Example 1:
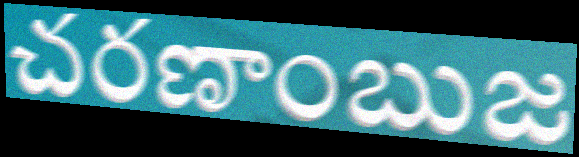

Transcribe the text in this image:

చరణాంబుజ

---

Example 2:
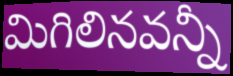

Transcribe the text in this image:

మిగిలినవన్నీ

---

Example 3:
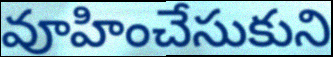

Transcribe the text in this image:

వూహించేసుకుని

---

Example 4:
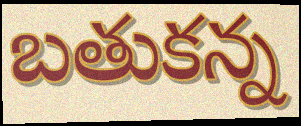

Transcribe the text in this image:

బతుకన్న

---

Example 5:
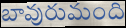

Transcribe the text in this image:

బావురుమంది